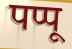
पप्पू